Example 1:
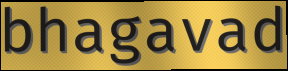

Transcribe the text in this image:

bhagavad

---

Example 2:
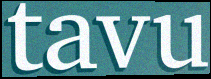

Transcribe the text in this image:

tavu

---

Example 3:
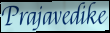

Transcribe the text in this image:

Prajavedike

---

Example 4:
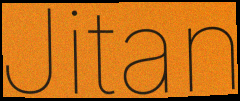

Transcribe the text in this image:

Jitan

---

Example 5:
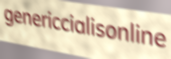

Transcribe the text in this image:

genericcialisonline